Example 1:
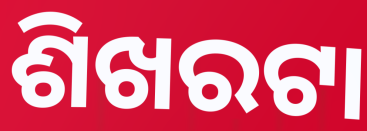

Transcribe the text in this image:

ଶିଖରଟା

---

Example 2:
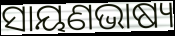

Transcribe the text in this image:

ସାୟଣଭାଷ୍ୟ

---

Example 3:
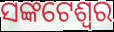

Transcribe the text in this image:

ସଙ୍କଟେଶ୍ୱର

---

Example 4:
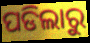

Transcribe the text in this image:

ପଡିଲାରୁ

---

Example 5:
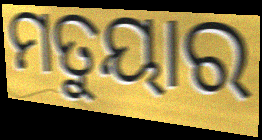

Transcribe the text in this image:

ମତୁୟାର